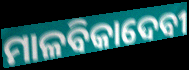
ମାଳବିକାଦେବୀ